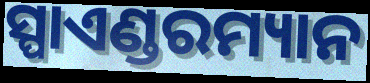
ସ୍ପାଏଣ୍ଡରମ୍ୟାନ